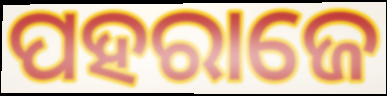
ପହରାଜେ